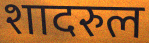
शादरुल